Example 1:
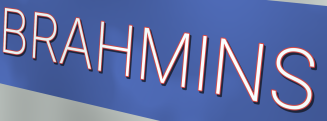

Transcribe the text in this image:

BRAHMINS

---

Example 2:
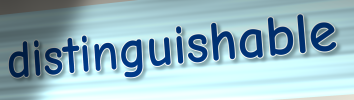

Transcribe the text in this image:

distinguishable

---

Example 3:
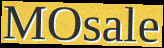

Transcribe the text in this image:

MOsale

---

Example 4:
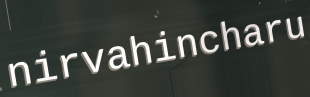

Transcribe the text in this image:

nirvahincharu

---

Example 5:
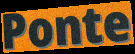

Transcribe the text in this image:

Ponte